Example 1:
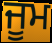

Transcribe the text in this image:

ਜੂਮ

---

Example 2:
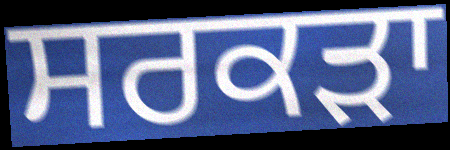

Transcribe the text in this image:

ਸਰਕੜਾ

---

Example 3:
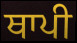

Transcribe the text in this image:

ਥਾਪੀ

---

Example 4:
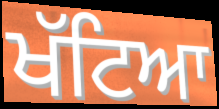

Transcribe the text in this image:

ਖੱਟਿਆ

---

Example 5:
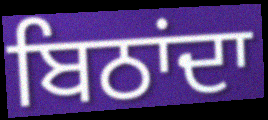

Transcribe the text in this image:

ਬਿਠਾਂਦਾ